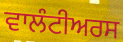
ਵਾਲੰਟੀਅਰਸ